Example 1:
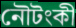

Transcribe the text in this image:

নৌটংকী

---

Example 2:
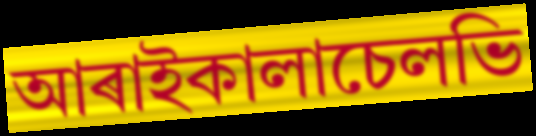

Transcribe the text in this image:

আৰাইকালাচেলভি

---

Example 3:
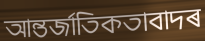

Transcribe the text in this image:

আন্তৰ্জাতিকতাবাদৰ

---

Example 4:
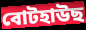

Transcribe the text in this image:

বোটহাউছ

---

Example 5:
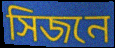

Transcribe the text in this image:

সিজনে